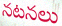
నటనలు